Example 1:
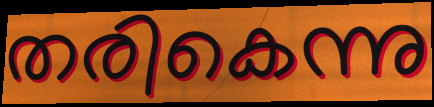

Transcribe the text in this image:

തരികെന്നു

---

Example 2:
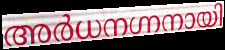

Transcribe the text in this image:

അർധനഗ്നനായി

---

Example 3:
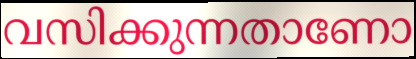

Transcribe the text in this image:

വസിക്കുന്നതാണോ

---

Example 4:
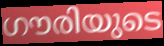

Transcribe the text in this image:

ഗൗരിയുടെ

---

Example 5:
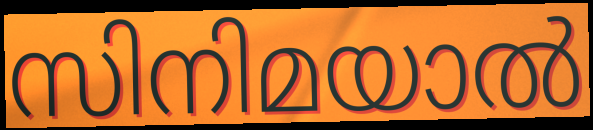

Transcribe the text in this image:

സിനിമയാൽ